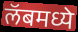
लॅबमध्ये